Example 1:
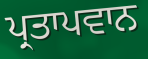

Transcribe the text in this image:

ਪ੍ਰਤਾਪਵਾਨ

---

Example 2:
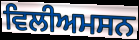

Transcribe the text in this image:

ਵਿਲੀਅਮਸਨ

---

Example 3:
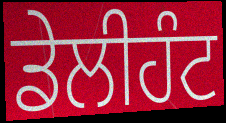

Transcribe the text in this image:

ਡੇਲੀਹੰਟ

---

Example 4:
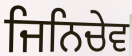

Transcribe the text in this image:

ਜਿਨਿਚੇਵ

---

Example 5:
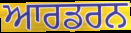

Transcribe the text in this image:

ਆਰਡਰਨ